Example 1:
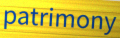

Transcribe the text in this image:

patrimony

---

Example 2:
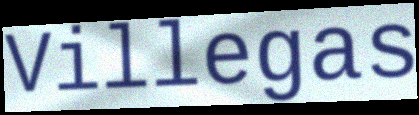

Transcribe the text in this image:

Villegas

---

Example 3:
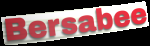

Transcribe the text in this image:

Bersabee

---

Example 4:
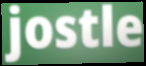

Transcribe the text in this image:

jostle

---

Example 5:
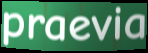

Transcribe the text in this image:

praevia